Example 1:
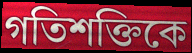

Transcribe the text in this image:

গতিশক্তিকে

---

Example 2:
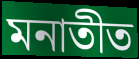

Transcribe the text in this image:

মনাতীত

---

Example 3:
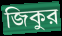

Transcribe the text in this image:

জিকুর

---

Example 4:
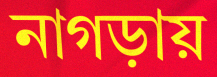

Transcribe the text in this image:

নাগড়ায়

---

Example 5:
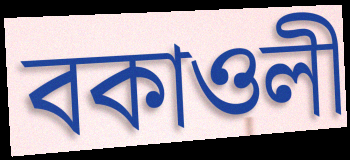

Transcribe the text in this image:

বকাওলী